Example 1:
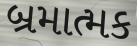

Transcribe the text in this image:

બ્રમાત્મક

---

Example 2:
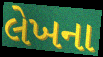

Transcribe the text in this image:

લેખના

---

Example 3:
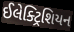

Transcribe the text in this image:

ઈલેક્ટ્રિશિયન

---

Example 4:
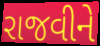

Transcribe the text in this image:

રાજવીને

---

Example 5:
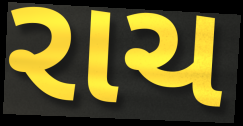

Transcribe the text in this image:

રાચ